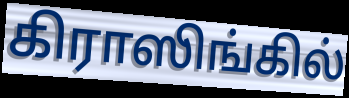
கிராஸிங்கில்